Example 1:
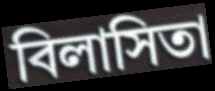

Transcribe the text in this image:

বিলাসিতা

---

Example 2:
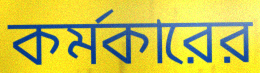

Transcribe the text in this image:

কর্মকারের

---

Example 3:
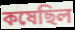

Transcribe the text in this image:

কষেছিল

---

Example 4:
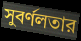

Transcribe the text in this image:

সুবর্ণলতার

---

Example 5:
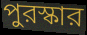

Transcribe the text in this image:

পুরস্কার